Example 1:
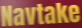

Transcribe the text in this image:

Navtake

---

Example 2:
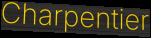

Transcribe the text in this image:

Charpentier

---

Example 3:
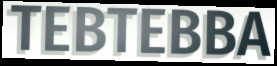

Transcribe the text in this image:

TEBTEBBA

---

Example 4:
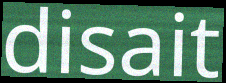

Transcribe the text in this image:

disait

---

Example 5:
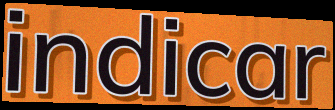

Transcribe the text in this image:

indicar